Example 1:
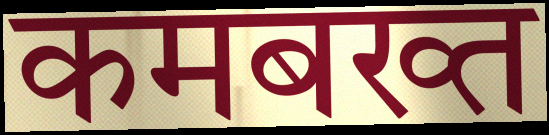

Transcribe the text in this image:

कमबख्त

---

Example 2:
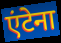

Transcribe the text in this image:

एंटेना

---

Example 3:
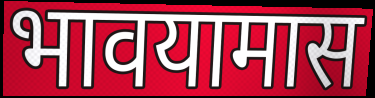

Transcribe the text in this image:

भावयामास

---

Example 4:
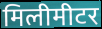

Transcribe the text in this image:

मिलीमीटर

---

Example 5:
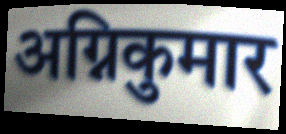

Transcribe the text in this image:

अग्निकुमार